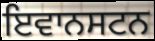
ਇਵਾਨਸਟਨ